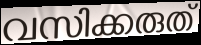
വസിക്കരുത്